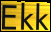
Ekk